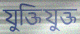
যুক্তিযুক্ত